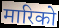
मारिको